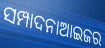
ସମ୍ପାଦନାଆଇଜର